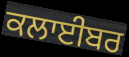
ਕਲਾਈਬਰ